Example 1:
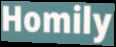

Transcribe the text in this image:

Homily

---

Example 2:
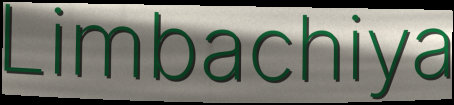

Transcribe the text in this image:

Limbachiya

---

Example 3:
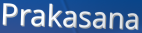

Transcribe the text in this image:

Prakasana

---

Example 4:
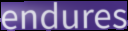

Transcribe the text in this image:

endures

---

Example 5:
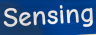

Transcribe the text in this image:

Sensing